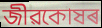
জীৱকোষৰ